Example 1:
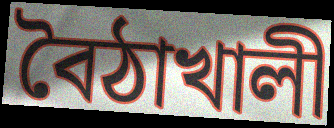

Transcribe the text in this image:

বৈঠাখালী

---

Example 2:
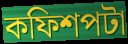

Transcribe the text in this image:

কফিশপটা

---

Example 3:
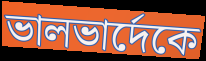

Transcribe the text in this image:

ভালভার্দেকে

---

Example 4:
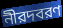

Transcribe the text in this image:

নীরদবরণ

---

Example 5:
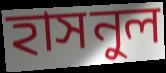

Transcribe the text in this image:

হাসনুল